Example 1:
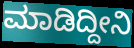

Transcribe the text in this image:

ಮಾಡಿದ್ದೀನಿ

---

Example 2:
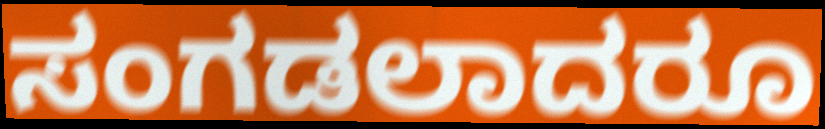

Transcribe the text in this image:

ಸಂಗಡಲಾದರೂ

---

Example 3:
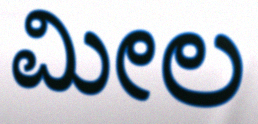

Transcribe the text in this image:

ಮೀಲ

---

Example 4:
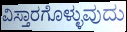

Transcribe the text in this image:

ವಿಸ್ತಾರಗೊಳ್ಳುವುದು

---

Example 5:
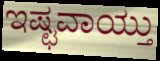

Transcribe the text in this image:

ಇಷ್ಟವಾಯ್ತು